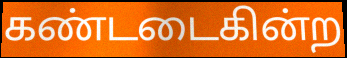
கண்டடைகின்ற